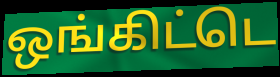
ஒங்கிட்டெ